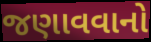
જણાવવાનો